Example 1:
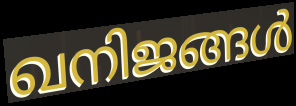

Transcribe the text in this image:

ഖനിജങ്ങൾ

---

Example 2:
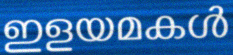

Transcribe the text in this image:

ഇളയമകൾ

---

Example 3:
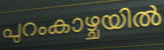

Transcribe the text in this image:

പുറംകാഴ്ചയിൽ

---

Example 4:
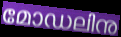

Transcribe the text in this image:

മോഡലിനു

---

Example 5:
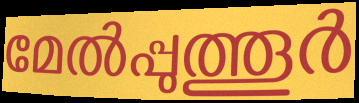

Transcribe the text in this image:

മേൽപ്പുത്തൂർ